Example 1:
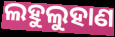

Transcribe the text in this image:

ଲହୁଲୁହାଣ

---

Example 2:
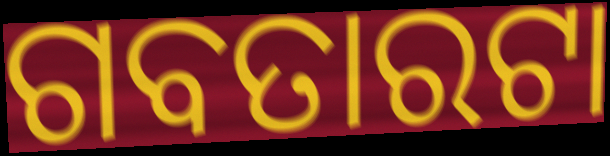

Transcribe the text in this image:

ଗବତାରଟା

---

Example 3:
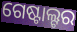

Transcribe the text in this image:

ଗେଷ୍ଟାଲ୍ଟର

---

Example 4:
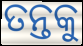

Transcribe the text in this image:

ତନ୍ତକୁ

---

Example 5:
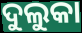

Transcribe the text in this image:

ଦୁଲୁକା